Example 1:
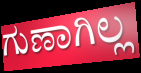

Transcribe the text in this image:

ಗುಣಾಗಿಲ್ಲ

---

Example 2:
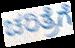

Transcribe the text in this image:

ಚರಿತ್ರೆಗೆ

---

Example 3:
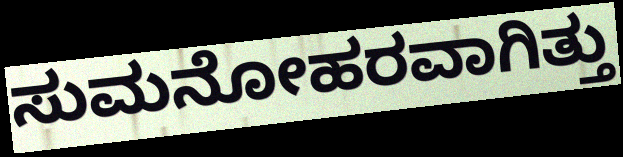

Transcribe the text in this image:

ಸುಮನೋಹರವಾಗಿತ್ತು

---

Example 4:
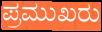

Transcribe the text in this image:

ಪ್ರಮುಖರು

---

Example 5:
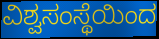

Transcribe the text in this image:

ವಿಶ್ವಸಂಸ್ಥೆಯಿಂದ